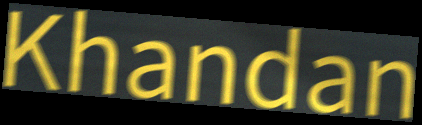
Khandan